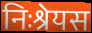
निःश्रेयस